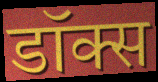
डॉक्स